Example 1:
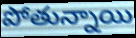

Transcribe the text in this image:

పోతున్నాయి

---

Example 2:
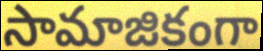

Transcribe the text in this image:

సామాజికంగా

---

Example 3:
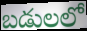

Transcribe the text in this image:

బడులలో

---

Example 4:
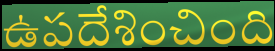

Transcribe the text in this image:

ఉపదేశించింది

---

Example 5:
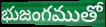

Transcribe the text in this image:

భుజంగముతో